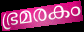
ഭ്രമരകം